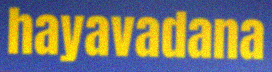
hayavadana